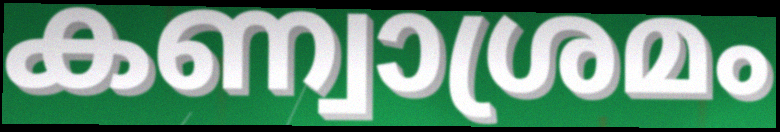
കണ്വാശ്രമം